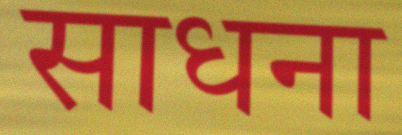
साधना